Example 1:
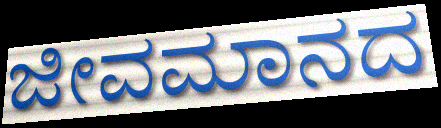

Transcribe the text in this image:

ಜೀವಮಾನದ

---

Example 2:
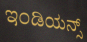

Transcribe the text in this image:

ಇಂಡಿಯನ್ಸ್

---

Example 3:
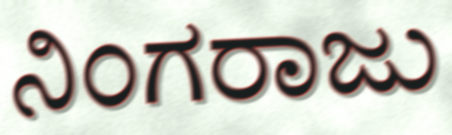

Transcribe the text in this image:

ನಿಂಗರಾಜು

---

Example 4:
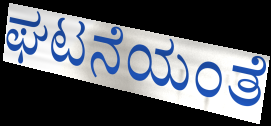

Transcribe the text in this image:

ಘಟನೆಯಂತೆ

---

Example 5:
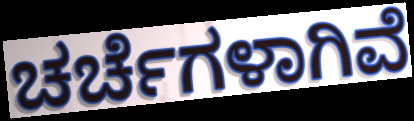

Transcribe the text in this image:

ಚರ್ಚೆಗಳಾಗಿವೆ